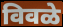
विवळे